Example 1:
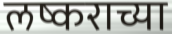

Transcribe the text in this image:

लष्कराच्या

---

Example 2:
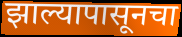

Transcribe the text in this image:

झाल्यापासूनचा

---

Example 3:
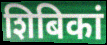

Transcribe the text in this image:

शिबिकां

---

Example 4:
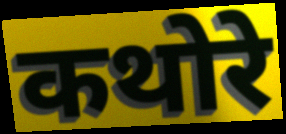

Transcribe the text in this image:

कथोरे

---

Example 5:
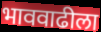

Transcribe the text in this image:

भाववाढीला